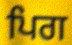
ਪਿਗ